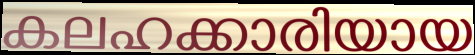
കലഹക്കാരിയായ